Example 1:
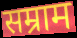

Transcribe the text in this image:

सम्राम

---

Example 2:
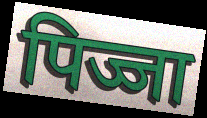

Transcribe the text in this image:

पिज्जा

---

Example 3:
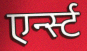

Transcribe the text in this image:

एर्न्स्ट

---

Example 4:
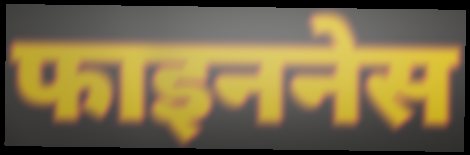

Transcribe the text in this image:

फाइननेस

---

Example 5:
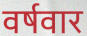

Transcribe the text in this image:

वर्षवार